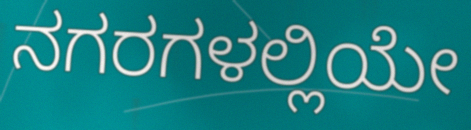
ನಗರಗಳಲ್ಲಿಯೇ